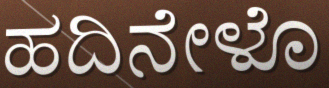
ಹದಿನೇಳೊ